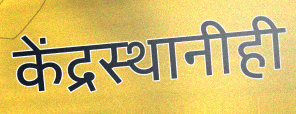
केंद्रस्थानीही